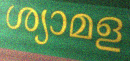
ശ്യാമള